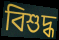
বিশুদ্ধ